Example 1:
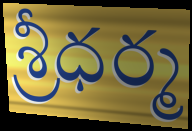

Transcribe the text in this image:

శ్రీధర్మ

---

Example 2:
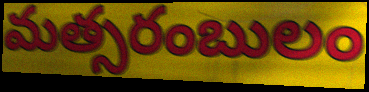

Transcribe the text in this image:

మత్సరంబులం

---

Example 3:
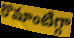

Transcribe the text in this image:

రొమాంటిగ్గా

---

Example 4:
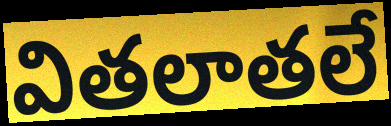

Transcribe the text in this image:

వితలాతలే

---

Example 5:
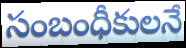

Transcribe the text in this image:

సంబంధీకులనే